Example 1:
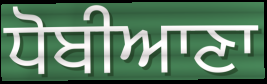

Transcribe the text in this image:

ਧੋਬੀਆਣਾ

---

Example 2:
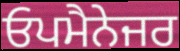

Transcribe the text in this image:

ਓਪਮੈਨੇਜਰ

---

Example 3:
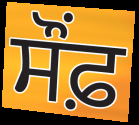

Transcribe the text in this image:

ਸੌਂਫ਼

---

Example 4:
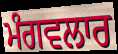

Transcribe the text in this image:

ਮੰਗਵਲਾਰ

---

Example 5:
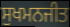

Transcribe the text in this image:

ਸੁਖਮਨਜੀਤ